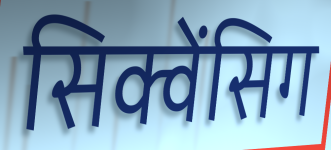
सिक्वेंसिग